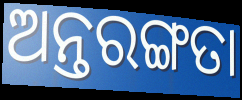
ଅନ୍ତରଙ୍ଗତା